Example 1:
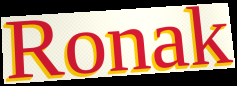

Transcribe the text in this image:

Ronak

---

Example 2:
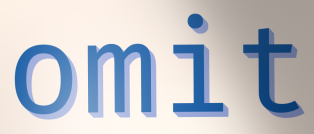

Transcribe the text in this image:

omit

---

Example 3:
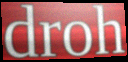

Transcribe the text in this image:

droh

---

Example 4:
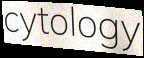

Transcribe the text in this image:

cytology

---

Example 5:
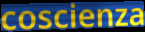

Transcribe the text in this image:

coscienza